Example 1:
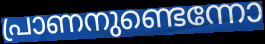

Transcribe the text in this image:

പ്രാണനുണ്ടെന്നോ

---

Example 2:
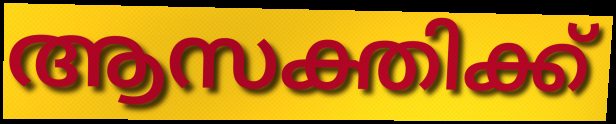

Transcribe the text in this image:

ആസക്തിക്ക്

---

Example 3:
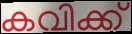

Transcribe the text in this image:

കവിക്ക്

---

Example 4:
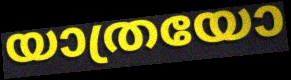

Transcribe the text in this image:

യാത്രയോ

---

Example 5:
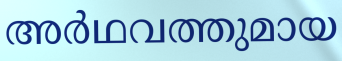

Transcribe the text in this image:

അർഥവത്തുമായ